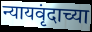
न्यायवृंदाच्या